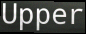
Upper